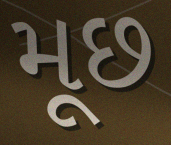
મૂછ